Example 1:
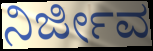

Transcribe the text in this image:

ನಿರ್ಜೀವ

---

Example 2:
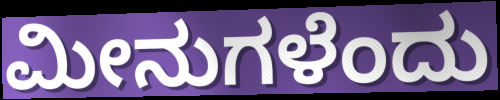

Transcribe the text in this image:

ಮೀನುಗಳೆಂದು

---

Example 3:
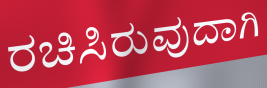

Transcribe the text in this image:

ರಚಿಸಿರುವುದಾಗಿ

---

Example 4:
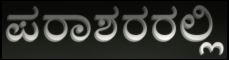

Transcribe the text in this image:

ಪರಾಶರರಲ್ಲಿ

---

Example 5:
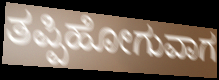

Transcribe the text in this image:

ತಪ್ಪಿಹೋಗುವಾಗ